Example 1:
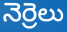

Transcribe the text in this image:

నెర్రెలు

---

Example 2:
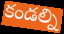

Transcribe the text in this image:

కండల్ని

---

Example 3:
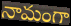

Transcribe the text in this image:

నామంగా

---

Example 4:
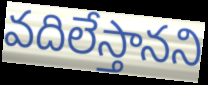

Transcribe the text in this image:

వదిలేస్తానని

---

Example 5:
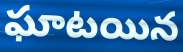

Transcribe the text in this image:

ఘాటయిన